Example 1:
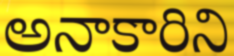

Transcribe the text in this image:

అనాకారిని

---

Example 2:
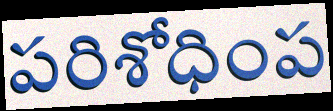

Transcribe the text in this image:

పరిశోధింప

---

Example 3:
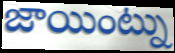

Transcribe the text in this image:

జాయింట్ను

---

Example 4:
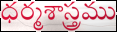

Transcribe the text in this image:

ధర్మశాస్త్రము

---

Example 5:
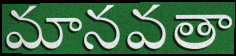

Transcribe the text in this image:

మానవతా